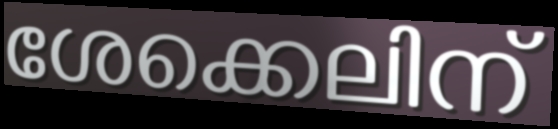
ശേക്കെലിന്